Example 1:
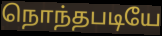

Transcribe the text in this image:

நொந்தபடியே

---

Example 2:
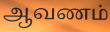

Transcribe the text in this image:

ஆவணம்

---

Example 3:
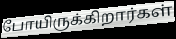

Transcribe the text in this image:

போயிருக்கிறார்கள்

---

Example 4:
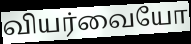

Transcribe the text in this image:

வியர்வையோ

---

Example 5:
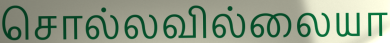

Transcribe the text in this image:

சொல்லவில்லையா